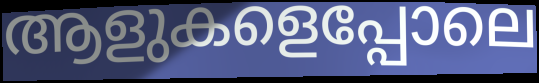
ആളുകളെപ്പോലെ